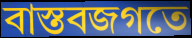
বাস্তবজগতে